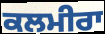
ਕਲਮੀਰਾ